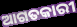
ଆଗତକାରୀ